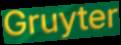
Gruyter